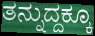
ತನ್ನುದ್ದಕ್ಕೂ